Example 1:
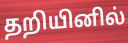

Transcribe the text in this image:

தறியினில்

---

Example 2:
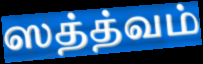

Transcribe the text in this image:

ஸத்த்வம்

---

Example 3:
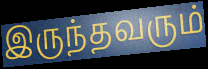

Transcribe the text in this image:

இருந்தவரும்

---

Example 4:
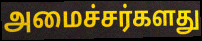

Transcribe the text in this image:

அமைச்சர்களது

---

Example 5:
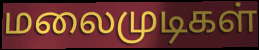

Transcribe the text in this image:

மலைமுடிகள்